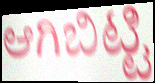
ಆಗಿಬಿಟ್ಟಿ